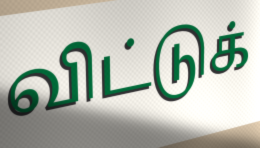
விட்டுக்